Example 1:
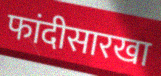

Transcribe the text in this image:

फांदीसारखा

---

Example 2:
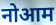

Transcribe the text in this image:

नोआम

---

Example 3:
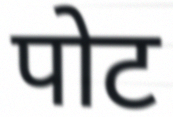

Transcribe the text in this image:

पोट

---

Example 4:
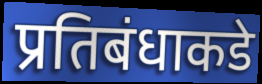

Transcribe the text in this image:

प्रतिबंधाकडे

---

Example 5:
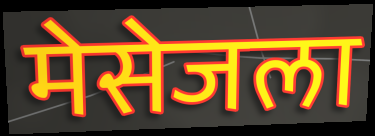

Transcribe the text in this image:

मेसेजला